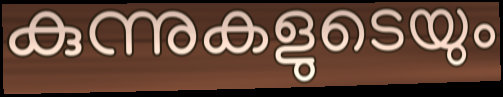
കുന്നുകളുടെയും